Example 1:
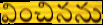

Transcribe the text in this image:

వించినను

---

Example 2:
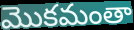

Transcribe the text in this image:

మొకమంతా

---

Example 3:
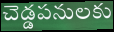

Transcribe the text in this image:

చెడ్డపనులకు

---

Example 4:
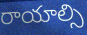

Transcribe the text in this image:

రాయాల్సి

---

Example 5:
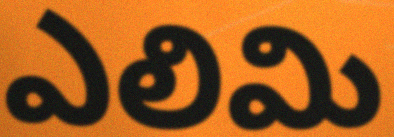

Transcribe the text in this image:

ఎలిమి